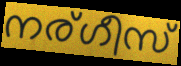
നര്ഗീസ്